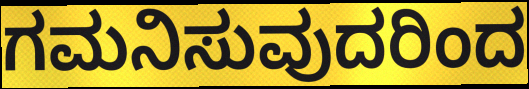
ಗಮನಿಸುವುದರಿಂದ